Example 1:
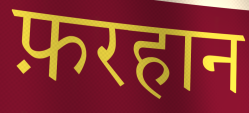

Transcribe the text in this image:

फ़रहान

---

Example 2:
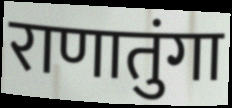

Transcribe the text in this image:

राणातुंगा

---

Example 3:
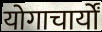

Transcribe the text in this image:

योगाचार्यों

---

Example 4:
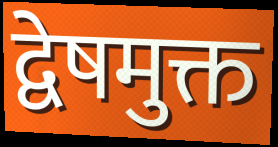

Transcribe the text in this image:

द्वेषमुक्त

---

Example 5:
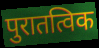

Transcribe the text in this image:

पुरातत्विक